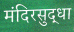
मंदिरसुद्धा